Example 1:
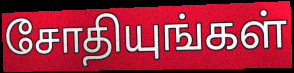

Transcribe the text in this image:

சோதியுங்கள்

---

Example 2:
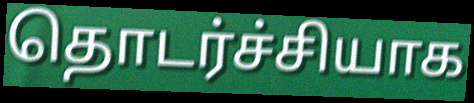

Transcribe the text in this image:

தொடர்ச்சியாக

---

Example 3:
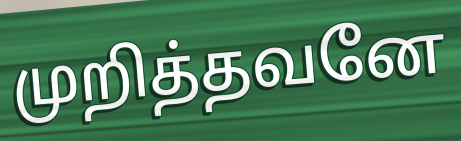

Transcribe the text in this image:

முறித்தவனே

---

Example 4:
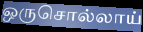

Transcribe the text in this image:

ஒருசொல்லாய்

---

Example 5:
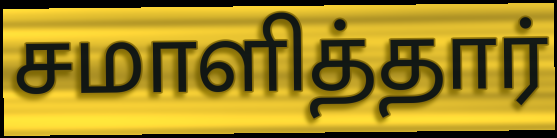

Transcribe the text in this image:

சமாளித்தார்